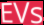
EVs